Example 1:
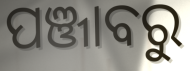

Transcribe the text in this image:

ପଞ୍ଜାବରୁ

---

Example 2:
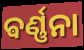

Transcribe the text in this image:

ଵର୍ଣ୍ଣନା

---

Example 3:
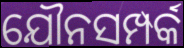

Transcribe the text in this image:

ଯୌନସମ୍ପର୍କ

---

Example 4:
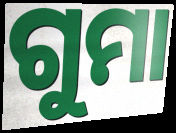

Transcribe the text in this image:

ଗୁମା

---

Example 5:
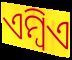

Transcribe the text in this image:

ଏମ୍ବିଏ